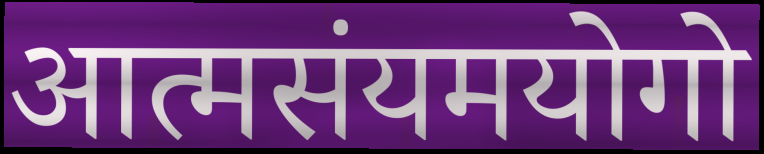
आत्मसंयमयोगो